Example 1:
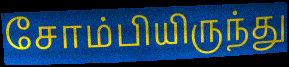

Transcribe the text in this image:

சோம்பியிருந்து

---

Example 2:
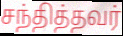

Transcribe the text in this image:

சந்தித்தவர்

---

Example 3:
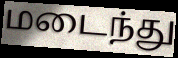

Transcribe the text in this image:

மடைந்து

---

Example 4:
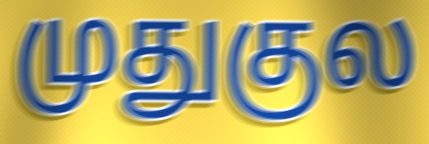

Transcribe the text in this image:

முதுகுல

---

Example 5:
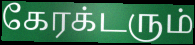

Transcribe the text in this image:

கேரக்டரும்